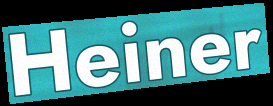
Heiner